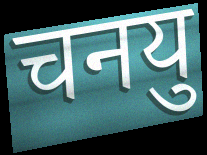
चनयु